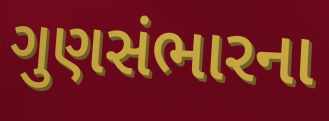
ગુણસંભારના